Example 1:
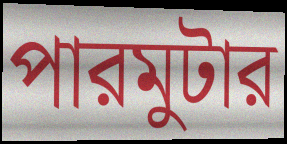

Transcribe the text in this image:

পারমুটার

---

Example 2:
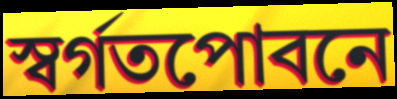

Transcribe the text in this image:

স্বর্গতপোবনে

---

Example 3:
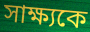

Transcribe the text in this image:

সাক্ষ্যকে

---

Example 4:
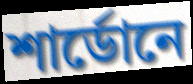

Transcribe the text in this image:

শার্ডোনে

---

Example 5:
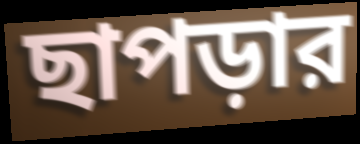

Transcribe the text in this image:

ছাপড়ার